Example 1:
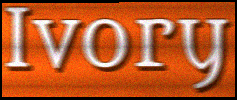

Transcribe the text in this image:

Ivory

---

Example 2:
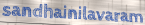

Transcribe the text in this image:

sandhainilavaram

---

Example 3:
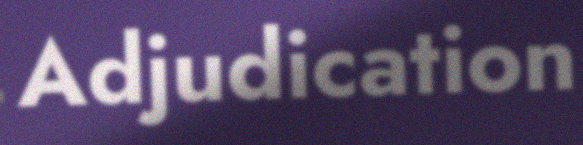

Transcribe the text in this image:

Adjudication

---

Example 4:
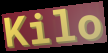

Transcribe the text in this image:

Kilo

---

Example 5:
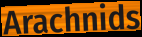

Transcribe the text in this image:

Arachnids